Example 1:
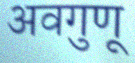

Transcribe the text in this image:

अवगुणू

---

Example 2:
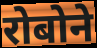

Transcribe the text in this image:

रोबोने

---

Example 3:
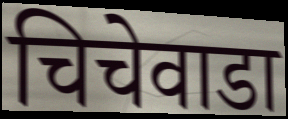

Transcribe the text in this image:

चिचेवाडा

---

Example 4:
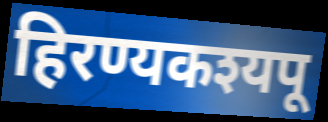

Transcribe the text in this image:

हिरण्यकश्यपू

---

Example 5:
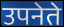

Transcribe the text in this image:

उपनेते